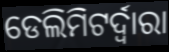
ଡେଲିମିଟର୍ଦ୍ୱାରା